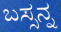
ಬಸ್ಸನ್ನ